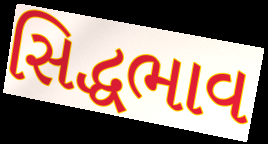
સિદ્ધભાવ